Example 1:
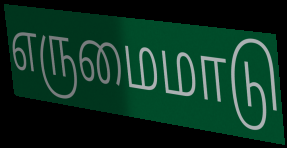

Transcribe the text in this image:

எருமைமாடு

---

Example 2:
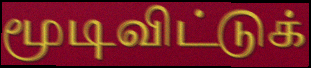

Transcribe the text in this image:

மூடிவிட்டுக்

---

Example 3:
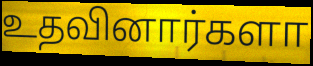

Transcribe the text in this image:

உதவினார்களா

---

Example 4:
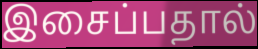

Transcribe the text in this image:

இசைப்பதால்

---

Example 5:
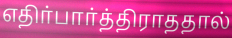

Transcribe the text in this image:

எதிர்பார்த்திராததால்